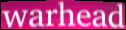
warhead